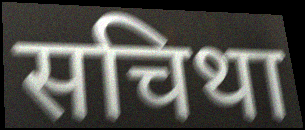
सचिथा